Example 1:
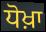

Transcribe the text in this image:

ਧੋਖ਼ਾ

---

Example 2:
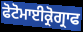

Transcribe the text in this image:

ਫੋਟੋਮਾਈਕ੍ਰੋਗ੍ਰਾਫ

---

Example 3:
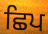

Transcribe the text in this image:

ਛਿਪ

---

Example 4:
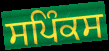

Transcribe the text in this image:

ਸਪਿੰਕਸ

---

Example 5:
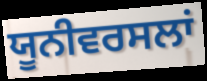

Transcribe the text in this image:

ਯੂਨੀਵਰਸਲਾਂ